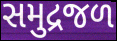
સમુદ્રજળ